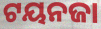
ଟୟନଜା